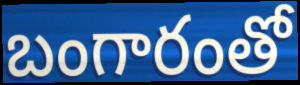
బంగారంతో